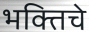
भक्तिचे